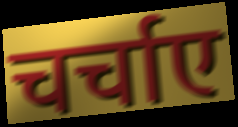
चर्चाए